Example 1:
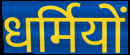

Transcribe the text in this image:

धर्मियों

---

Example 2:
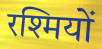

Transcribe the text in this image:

रश्मियों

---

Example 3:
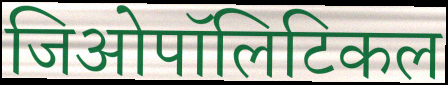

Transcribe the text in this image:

जिओपॉलिटिकल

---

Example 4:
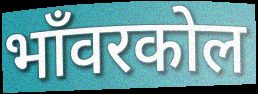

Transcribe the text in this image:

भाँवरकोल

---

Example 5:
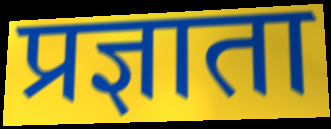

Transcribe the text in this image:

प्रज्ञाता